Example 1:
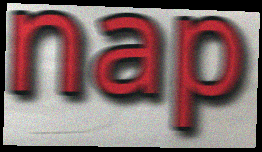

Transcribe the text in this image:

nap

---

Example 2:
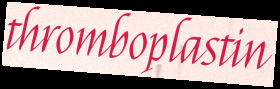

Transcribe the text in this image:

thromboplastin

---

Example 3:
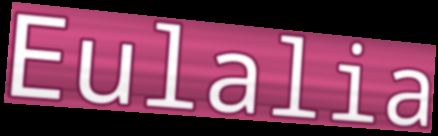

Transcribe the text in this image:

Eulalia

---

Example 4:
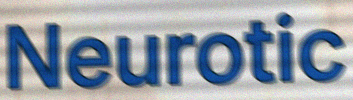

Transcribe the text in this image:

Neurotic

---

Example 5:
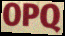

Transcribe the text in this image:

OPQ